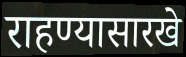
राहण्यासारखे